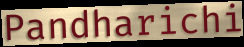
Pandharichi